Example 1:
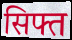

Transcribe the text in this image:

सिफ्त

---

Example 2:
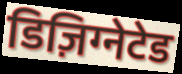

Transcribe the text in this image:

डिज़िग्नेटेड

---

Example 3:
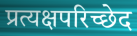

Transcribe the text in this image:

प्रत्यक्षपरिच्छेद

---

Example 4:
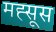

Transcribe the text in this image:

मह्सूस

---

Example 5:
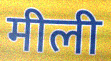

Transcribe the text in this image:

मीली